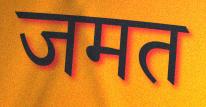
जमत